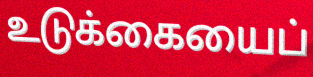
உடுக்கையைப்